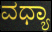
ವಧ್ಯಾ